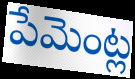
పేమెంట్ల